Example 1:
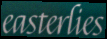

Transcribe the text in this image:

easterlies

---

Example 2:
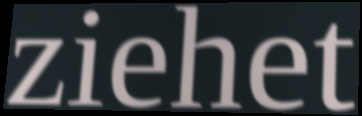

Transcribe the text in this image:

ziehet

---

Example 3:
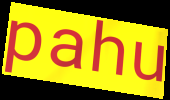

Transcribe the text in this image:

pahu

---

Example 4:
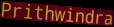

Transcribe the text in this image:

Prithwindra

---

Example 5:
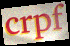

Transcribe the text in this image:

crpf